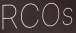
RCOs